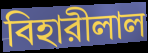
বিহারীলাল